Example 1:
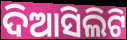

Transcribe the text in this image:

ଦିଆସିଲିଟି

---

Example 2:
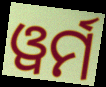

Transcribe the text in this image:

ୱର୍ମ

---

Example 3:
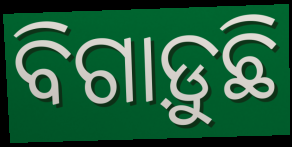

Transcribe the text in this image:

ବିଗାଡ଼ୁଛି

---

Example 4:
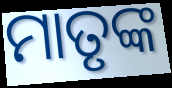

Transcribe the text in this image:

ମାତୃଙ୍କ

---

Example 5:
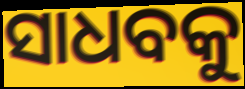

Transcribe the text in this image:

ସାଧବକୁ